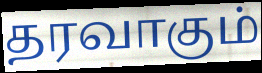
தரவாகும்